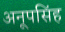
अनूपसिंह